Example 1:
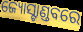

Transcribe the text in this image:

ଜ୍ୟୋସ୍ଟାଣ୍ଡବରେ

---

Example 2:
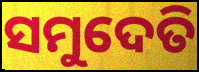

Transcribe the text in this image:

ସମୁଦେତି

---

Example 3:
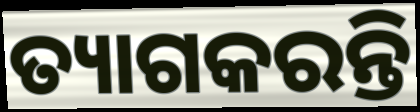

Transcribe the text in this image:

ତ୍ୟାଗକରନ୍ତି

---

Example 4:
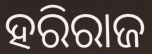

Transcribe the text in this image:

ହରିରାଜ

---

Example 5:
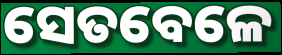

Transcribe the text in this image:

ସେତବେଳେ